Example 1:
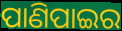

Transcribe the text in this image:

ପାଣିପାଇର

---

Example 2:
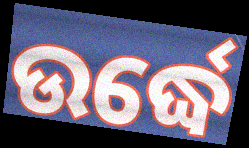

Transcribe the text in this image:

ଉର୍ଦ୍ଧେ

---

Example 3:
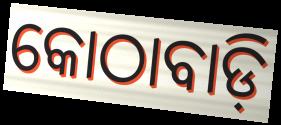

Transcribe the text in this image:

କୋଠାବାଡ଼ି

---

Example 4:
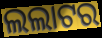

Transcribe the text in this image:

ଲଲାଟର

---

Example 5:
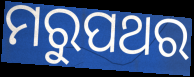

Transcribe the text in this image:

ମରୁପଥର